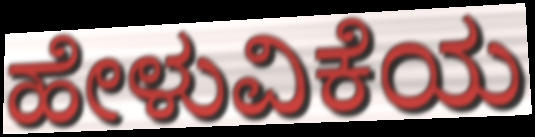
ಹೇಳುವಿಕೆಯ